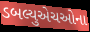
ડબલ્યુએચઓના